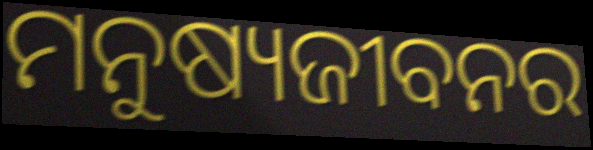
ମନୁଷ୍ୟଜୀବନର